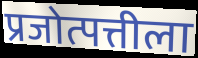
प्रजोत्पत्तीला